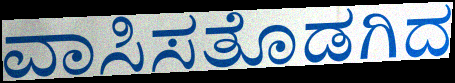
ವಾಸಿಸತೊಡಗಿದ